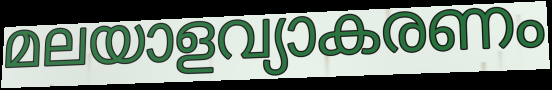
മലയാളവ്യാകരണം